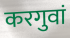
करगुवां